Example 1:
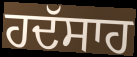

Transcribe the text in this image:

ਹਦੱਸਾਹ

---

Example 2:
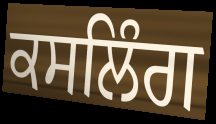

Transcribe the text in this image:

ਕਸਲਿੰਗ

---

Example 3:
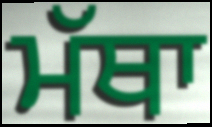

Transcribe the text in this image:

ਮੱਥਾ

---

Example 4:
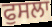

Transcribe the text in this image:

ਫੁਸਲਾ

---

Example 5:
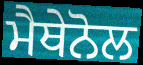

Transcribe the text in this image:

ਮੈਥੇਨੋਲ